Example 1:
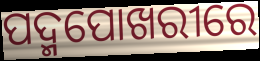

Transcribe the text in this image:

ପଦ୍ମପୋଖରୀରେ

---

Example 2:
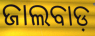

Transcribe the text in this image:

ଜାଲବାଡ଼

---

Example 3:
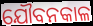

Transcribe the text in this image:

ଯୌବନକାଳ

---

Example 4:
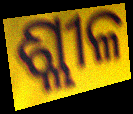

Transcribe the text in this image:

ଶ୍ଲୀଳ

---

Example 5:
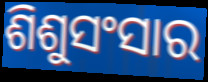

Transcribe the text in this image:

ଶିଶୁସଂସାର